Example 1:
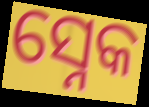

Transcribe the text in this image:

ସ୍ନେକ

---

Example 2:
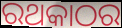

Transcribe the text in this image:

ରଥକାଠର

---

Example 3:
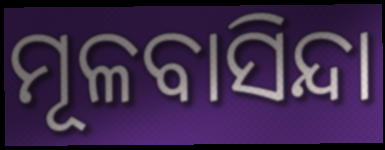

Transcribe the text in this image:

ମୂଳବାସିନ୍ଦା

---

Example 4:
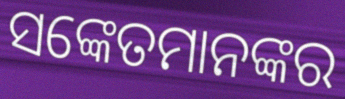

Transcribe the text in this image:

ସଙ୍କେତମାନଙ୍କର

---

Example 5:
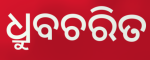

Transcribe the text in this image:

ଧ୍ରୁବଚରିତ